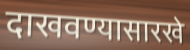
दाखवण्यासारखे